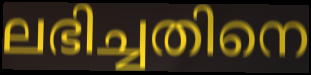
ലഭിച്ചതിനെ